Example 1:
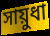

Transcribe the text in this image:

সায়ুধা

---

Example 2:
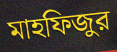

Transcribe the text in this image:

মাহফিজুর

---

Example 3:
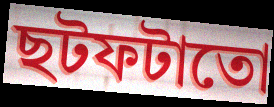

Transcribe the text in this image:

ছটফটাতো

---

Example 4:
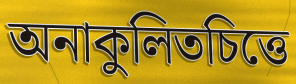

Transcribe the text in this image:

অনাকুলিতচিত্তে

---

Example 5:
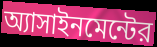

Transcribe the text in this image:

অ্যাসাইনমেন্টের